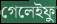
গেলেইফু